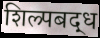
शिल्पबद्ध